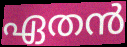
ഏതൻ